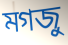
মগজু